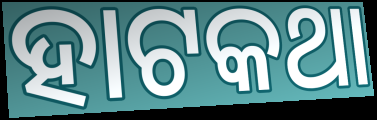
ହାଟକଥା